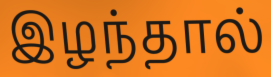
இழந்தால்